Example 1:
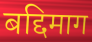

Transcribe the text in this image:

बद्दिमाग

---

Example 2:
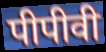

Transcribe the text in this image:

पीपीवी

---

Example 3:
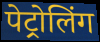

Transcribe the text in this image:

पेट्रोलिंग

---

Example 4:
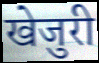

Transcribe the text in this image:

खेजुरी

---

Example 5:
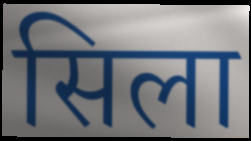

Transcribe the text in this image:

सिला